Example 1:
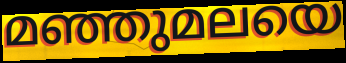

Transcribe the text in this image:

മഞ്ഞുമലയെ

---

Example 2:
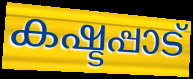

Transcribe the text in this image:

കഷ്ടപ്പാട്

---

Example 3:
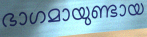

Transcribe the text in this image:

ഭാഗമായുണ്ടായ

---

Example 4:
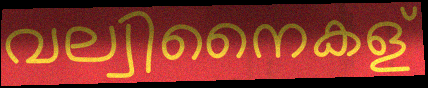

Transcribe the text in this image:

വല്വിനൈകള്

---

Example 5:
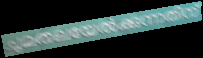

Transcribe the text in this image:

ചുമതലയേൽക്കുന്നതിന്